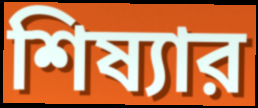
শিষ্যার